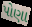
પોણા